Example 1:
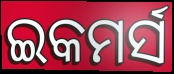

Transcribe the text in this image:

ଇକମର୍ସ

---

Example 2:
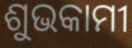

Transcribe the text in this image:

ଶୁଭକାମୀ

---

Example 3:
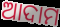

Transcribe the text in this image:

ଆଦାମ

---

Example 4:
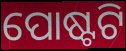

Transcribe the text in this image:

ପୋଷ୍ଟଟି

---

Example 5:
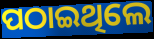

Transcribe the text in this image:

ପଠାଇଥିଲେ